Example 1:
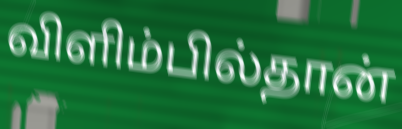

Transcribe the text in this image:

விளிம்பில்தான்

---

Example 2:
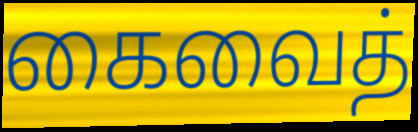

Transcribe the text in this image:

கைவைத்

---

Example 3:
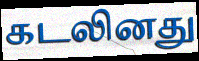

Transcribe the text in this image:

கடலினது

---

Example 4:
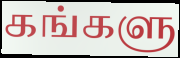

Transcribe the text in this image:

கங்களு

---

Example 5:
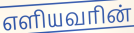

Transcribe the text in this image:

எளியவரின்